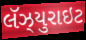
લૅઝ્યુરાઇટ